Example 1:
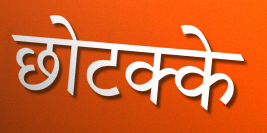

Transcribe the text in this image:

छोटक्के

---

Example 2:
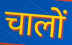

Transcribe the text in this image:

चालों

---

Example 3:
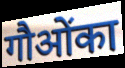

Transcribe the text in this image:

गौओंका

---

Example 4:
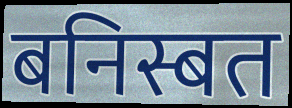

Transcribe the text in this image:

बनिस्बत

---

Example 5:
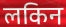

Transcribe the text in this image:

लकिन